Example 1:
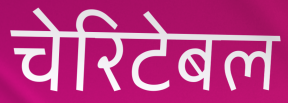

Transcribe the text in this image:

चेरिटेबल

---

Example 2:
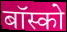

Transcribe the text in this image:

बॉस्को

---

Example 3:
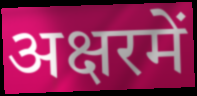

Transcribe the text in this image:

अक्षरमें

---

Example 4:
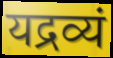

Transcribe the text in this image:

यद्रव्यं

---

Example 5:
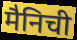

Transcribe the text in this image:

मैनिची